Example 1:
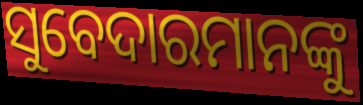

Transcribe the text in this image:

ସୁବେଦାରମାନଙ୍କୁ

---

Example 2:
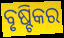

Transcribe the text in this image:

ବୃଷ୍ଚିକର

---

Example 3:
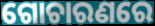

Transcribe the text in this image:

ଗୋଚାରଣରେ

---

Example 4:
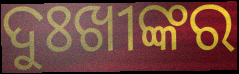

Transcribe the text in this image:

ଦୁଃଖୀଙ୍କର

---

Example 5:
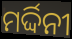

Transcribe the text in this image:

ମର୍ଦ୍ଦିନୀ